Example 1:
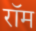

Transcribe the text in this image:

रॉम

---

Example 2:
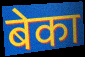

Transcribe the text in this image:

बेका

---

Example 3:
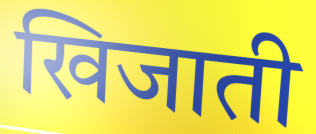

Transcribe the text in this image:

खिजाती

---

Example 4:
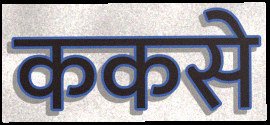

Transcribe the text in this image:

ककसे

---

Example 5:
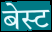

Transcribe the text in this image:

बेस्‍ट